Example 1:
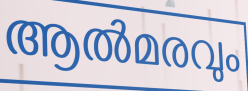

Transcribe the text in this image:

ആൽമരവും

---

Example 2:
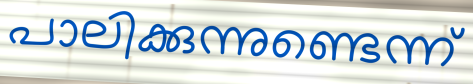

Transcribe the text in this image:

പാലിക്കുന്നുണ്ടെന്ന്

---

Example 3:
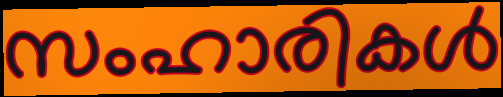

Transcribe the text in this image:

സംഹാരികൾ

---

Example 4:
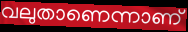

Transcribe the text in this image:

വലുതാണെന്നാണ്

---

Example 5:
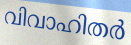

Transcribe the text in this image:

വിവാഹിതർ